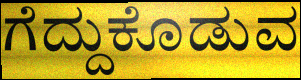
ಗೆದ್ದುಕೊಡುವ